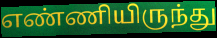
எண்ணியிருந்து